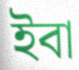
ইবা